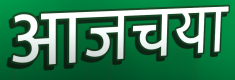
आजचया